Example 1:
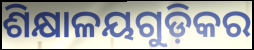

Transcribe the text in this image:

ଶିକ୍ଷାଳୟଗୁଡ଼ିକର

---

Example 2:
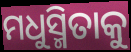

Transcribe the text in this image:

ମଧୁସ୍ମିତାକୁ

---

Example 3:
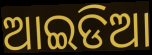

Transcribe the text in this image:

ଆଇଡିଆ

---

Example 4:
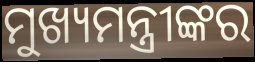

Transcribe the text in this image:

ମୁଖ୍ୟମନ୍ତ୍ରୀଙ୍କର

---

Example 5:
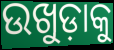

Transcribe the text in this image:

ଉଖୁଡ଼ାକୁ